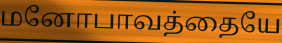
மனோபாவத்தையே